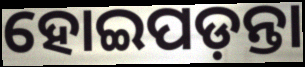
ହୋଇପଡ଼ନ୍ତା